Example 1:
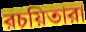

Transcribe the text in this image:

রচয়িতারা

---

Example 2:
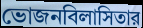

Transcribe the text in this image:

ভোজনবিলাসিতার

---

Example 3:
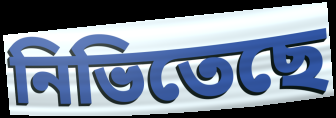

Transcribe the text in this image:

নিভিতেছে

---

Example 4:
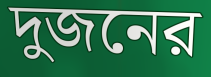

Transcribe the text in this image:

দুজনের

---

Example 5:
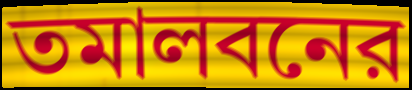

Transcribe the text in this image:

তমালবনের